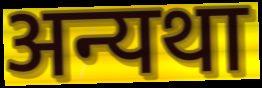
अन्यथा